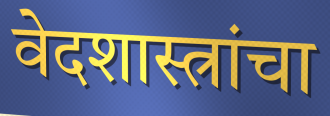
वेदशास्त्रांचा